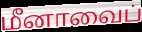
மீனாவைப்